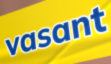
vasant